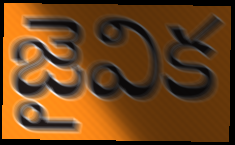
జైవిక